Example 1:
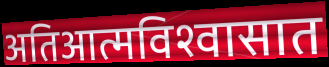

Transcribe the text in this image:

अतिआत्मविश्वासात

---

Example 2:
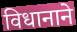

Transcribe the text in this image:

विधानाने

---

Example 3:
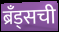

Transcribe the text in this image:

ब्रॅंड्सची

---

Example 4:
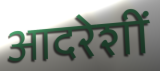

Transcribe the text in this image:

आदरेशीं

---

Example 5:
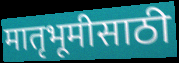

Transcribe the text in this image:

मातृभूमीसाठी